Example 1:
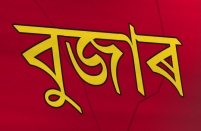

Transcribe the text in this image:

বুজাৰ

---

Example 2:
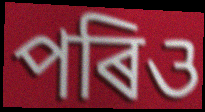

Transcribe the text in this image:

পৰিও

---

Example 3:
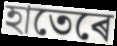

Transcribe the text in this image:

হাতেৰে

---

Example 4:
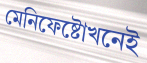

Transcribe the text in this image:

মেনিফেষ্টোখনেই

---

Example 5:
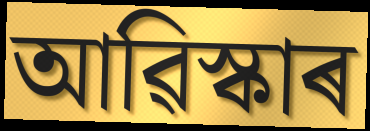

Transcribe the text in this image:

আৱিস্কাৰ